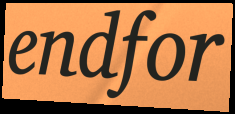
endfor